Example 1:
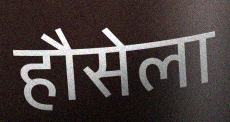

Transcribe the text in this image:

हौसेला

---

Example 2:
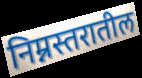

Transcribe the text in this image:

निम्नस्तरातील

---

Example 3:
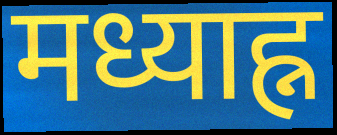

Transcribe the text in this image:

मध्याह्न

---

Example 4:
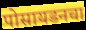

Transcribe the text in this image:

पोसायडनचा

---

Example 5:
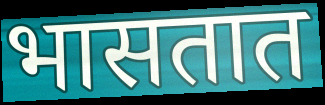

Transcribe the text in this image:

भासतात